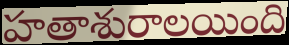
హతాశురాలయింది